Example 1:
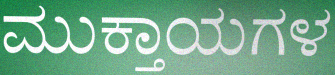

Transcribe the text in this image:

ಮುಕ್ತಾಯಗಳ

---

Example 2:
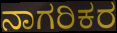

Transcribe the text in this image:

ನಾಗರಿಕರ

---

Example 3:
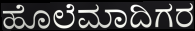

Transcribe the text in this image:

ಹೊಲೆಮಾದಿಗರ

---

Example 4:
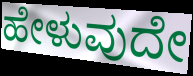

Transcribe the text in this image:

ಹೇಳುವುದೇ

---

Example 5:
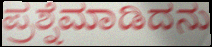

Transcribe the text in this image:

ಪ್ರಶ್ನೆಮಾಡಿದನು